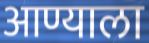
आण्याला